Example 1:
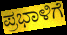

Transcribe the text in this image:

ಪ್ರಭಾಳಿಗೆ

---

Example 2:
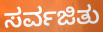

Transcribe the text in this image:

ಸರ್ವಜಿತು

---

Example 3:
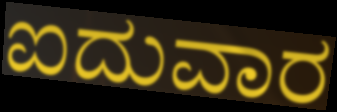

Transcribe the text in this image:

ಐದುವಾರ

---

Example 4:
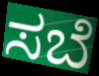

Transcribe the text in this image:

ಸಬೆ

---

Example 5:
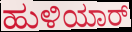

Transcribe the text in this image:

ಹುಳಿಯಾರ್